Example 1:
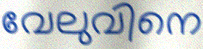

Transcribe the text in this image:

വേലുവിനെ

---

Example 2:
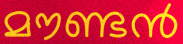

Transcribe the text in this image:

മൗണ്ടൻ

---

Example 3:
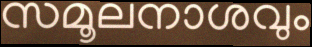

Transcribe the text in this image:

സമൂലനാശവും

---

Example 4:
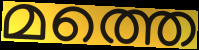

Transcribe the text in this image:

മത്തെ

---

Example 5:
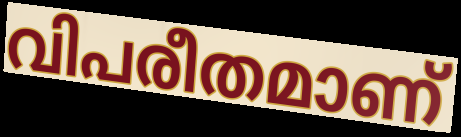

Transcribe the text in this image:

വിപരീതമാണ്